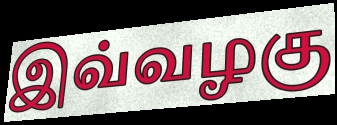
இவ்வழகு